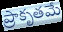
ప్రాకృతమే